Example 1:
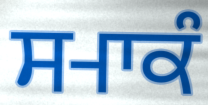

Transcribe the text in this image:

ਸ੍ਮਾਕੰ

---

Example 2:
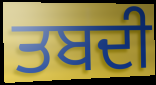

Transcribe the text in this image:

ਤਬਦੀ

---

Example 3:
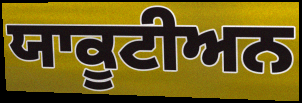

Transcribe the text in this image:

ਯਾਕੂਟੀਅਨ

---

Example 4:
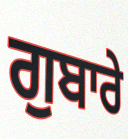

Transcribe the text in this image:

ਗੁਬਾਰੇ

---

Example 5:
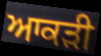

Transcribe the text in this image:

ਆਕੜੀ